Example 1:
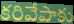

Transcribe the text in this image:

కరివేపాకు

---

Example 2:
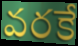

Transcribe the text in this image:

వరకే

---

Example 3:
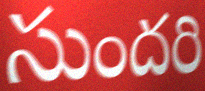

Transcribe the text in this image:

సుందరి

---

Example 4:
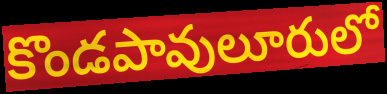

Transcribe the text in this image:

కొండపావులూరులో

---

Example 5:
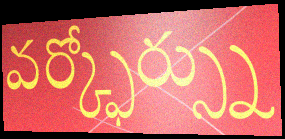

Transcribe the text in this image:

వర్క్ఫోర్స్ను